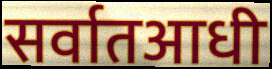
सर्वातआधी